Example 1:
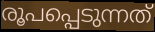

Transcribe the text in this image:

രൂപപ്പെടുന്നത്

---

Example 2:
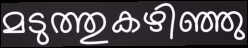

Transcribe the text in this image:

മടുത്തുകഴിഞ്ഞു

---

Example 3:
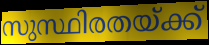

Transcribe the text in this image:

സുസ്ഥിരതയ്ക്ക്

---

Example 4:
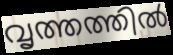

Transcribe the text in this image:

വൃത്തത്തിൽ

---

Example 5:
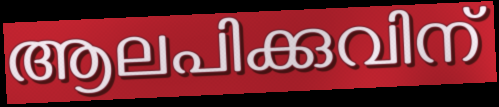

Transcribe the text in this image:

ആലപിക്കുവിന്